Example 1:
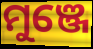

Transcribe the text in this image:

ମୁଞ୍ଜେ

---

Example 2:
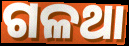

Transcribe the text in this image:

ଗଳଥା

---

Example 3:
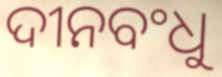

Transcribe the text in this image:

ଦୀନବଂଧୁ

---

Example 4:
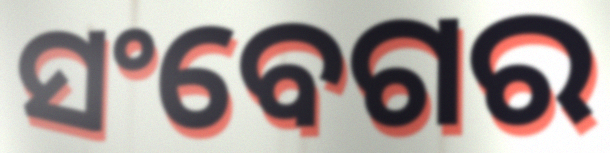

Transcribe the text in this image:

ସଂବେଗର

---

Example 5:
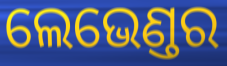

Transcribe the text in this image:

ଲେଭେଣ୍ଡର